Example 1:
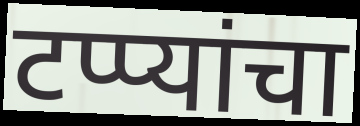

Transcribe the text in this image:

टप्प्यांचा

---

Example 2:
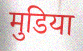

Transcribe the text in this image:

मुडिया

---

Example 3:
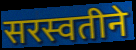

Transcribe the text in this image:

सरस्वतीने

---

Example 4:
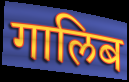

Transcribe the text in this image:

गालिब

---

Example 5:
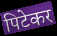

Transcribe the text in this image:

पिटेकर